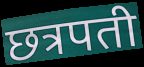
छत्रपती